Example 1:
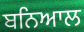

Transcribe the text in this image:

ਬਨਿਆਲ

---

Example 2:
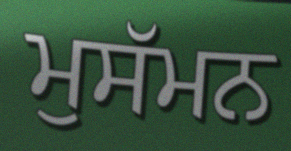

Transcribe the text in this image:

ਮੁਸੱਮਨ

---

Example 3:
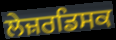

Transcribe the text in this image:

ਲੇਜ਼ਰਡਿਸਕ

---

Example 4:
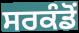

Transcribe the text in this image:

ਸਰਕੰਡੋਂ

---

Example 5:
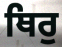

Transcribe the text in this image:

ਥਿਰੁ